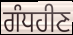
ਗੰਧਹੀਣ